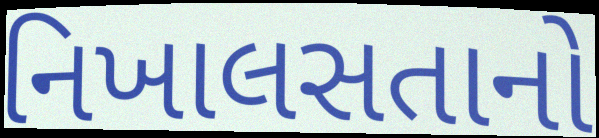
નિખાલસતાનો